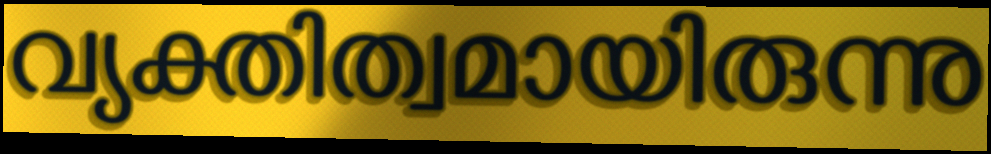
വ്യക്തിത്വമായിരുന്നു